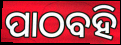
ପାଠବହି